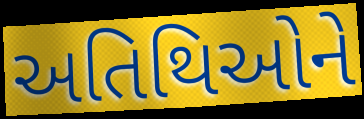
અતિથિઓને